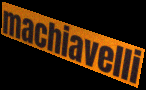
machiavelli